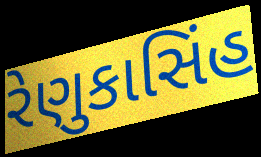
રેણુકાસિંહ